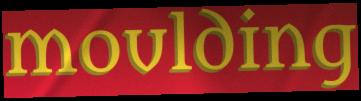
moulding